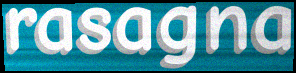
rasagna